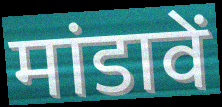
मांडावें